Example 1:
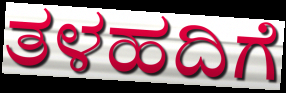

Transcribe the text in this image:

ತಳಹದಿಗೆ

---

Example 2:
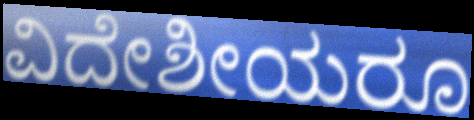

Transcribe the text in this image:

ವಿದೇಶೀಯರೂ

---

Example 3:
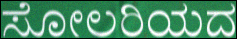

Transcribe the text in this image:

ಸೋಲರಿಯದ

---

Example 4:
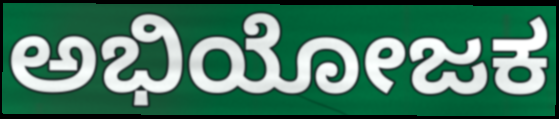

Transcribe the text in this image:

ಅಭಿಯೋಜಕ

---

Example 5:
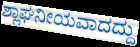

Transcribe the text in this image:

ಶ್ಲಾಘನೀಯವಾದದ್ದು